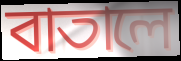
বাতালে